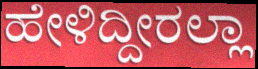
ಹೇಳಿದ್ದೀರಲ್ಲಾ